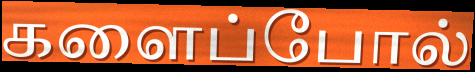
களைப்போல்